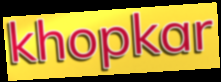
khopkar